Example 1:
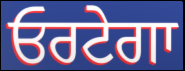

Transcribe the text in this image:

ਓਰਟੇਗਾ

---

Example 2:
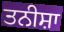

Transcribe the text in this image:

ਤਨੀਸ਼ਾ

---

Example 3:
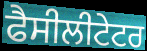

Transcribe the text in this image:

ਫੈਸੀਲੀਟੇਟਰ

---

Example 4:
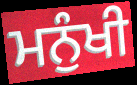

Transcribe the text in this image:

ਮਨੁੰਖੀ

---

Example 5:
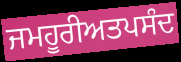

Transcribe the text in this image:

ਜਮਹੂਰੀਅਤਪਸੰਦ